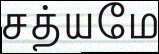
சத்யமே